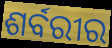
ଶର୍ବରୀର